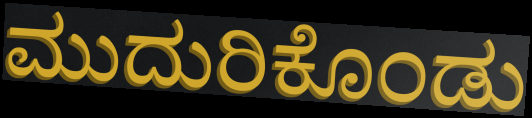
ಮುದುರಿಕೊಂಡು